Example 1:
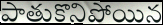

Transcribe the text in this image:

పాతుకొనిపోయిన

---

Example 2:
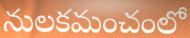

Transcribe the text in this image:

నులకమంచంలో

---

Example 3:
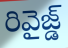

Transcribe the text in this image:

రివైజ్డ్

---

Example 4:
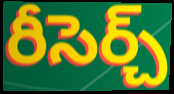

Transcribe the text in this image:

రీసెర్చ్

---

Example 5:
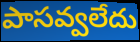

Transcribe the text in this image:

పాసవ్వలేదు